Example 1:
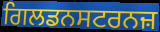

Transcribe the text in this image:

ਗਿਲਡਨਸਟਰਨਜ਼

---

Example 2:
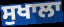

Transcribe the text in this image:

ਸੁਖਾਲਾ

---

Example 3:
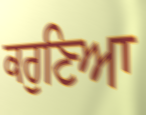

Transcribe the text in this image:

ਕਰੁਣਿਆ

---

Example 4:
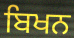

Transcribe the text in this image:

ਬਿਖਨ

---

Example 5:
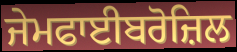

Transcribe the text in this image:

ਜੇਮਫਾਈਬਰੋਜ਼ਿਲ